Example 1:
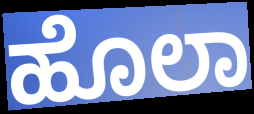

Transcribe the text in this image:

ಹೊಲಾ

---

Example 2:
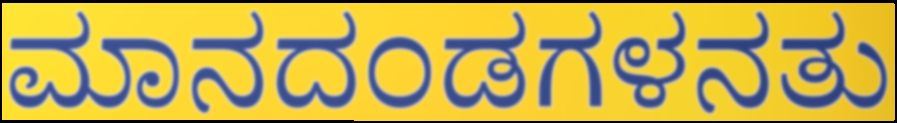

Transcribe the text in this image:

ಮಾನದಂಡಗಳನತು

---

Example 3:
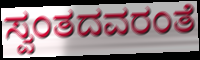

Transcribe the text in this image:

ಸ್ವಂತದವರಂತೆ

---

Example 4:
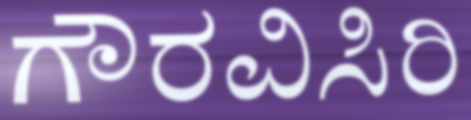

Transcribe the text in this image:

ಗೌರವಿಸಿರಿ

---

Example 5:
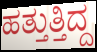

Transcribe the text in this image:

ಹತ್ತುತ್ತಿದ್ದ